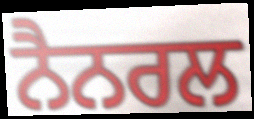
ਨੈਨਰਲ